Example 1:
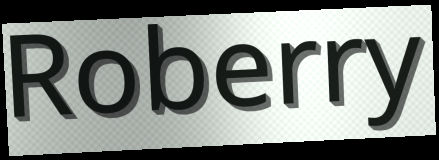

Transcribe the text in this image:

Roberry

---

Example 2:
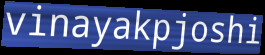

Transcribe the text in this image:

vinayakpjoshi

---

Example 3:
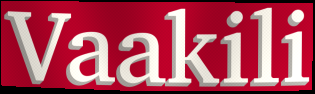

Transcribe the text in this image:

Vaakili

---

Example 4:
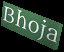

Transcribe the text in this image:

Bhoja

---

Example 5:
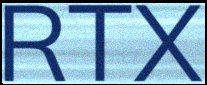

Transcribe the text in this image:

RTX